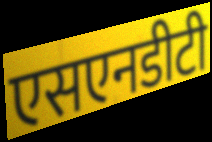
एसएनडीटी